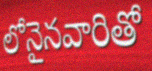
లోనైనవారితో